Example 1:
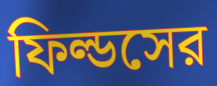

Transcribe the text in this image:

ফিল্ডসের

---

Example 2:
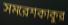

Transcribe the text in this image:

সমরেশকাকুর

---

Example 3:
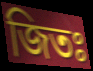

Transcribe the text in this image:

জিতঃ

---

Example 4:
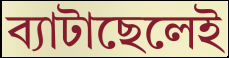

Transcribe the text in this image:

ব্যাটাছেলেই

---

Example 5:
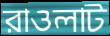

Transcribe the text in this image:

রাওলাট